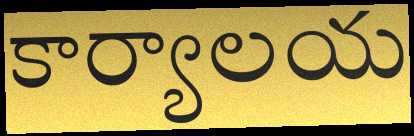
కార్యాలయ